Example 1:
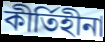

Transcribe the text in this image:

কীর্তিহীনা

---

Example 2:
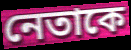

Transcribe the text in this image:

নেতাকে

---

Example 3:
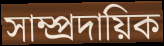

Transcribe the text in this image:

সাম্প্রদায়িক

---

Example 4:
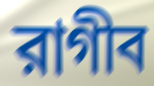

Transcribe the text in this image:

রাগীব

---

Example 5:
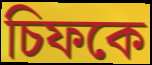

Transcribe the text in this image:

চিফকে